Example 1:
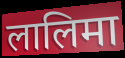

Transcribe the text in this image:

लालिमा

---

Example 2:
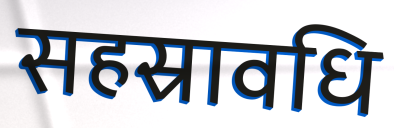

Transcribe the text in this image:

सहस्रावधि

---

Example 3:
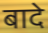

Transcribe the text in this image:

बादे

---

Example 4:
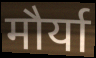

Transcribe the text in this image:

मौर्या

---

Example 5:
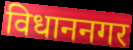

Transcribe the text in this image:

विधाननगर